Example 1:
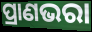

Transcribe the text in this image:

ପ୍ରାଣଭରା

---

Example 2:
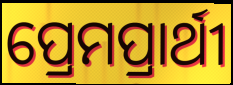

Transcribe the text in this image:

ପ୍ରେମପ୍ରାର୍ଥୀ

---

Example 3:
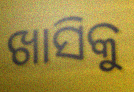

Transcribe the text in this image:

ଖାସିକୁ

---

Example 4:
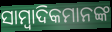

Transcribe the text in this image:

ସାମ୍ବାଦିକମାନଙ୍କ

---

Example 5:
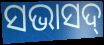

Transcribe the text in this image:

ସଭାସଦ୍